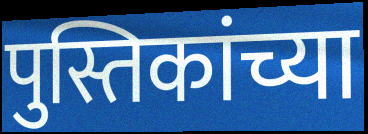
पुस्तिकांच्या